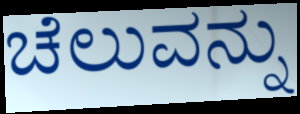
ಚೆಲುವನ್ನು